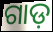
ଗାଡ଼